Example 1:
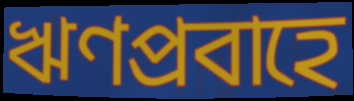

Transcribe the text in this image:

ঋণপ্রবাহে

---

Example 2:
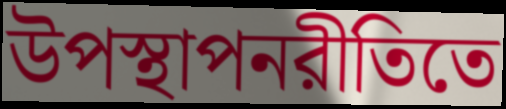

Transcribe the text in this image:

উপস্থাপনরীতিতে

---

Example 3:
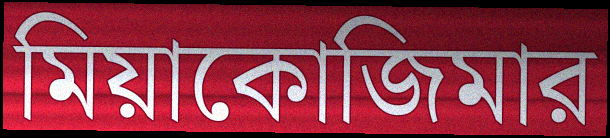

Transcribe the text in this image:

মিয়াকোজিমার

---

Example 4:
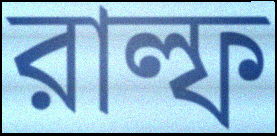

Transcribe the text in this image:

রাল্ফ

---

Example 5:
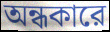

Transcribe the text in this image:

অন্ধকারে